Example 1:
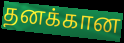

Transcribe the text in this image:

தனக்கான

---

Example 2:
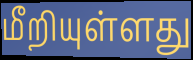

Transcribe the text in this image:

மீறியுள்ளது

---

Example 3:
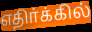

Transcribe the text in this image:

எதிர்க்கில்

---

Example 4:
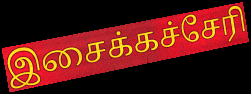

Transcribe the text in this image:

இசைக்கச்சேரி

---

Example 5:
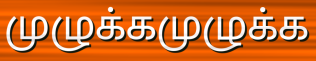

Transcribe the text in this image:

முழுக்கமுழுக்க